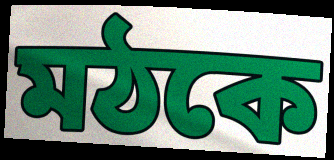
মঠকে